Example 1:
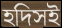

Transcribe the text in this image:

হদিসই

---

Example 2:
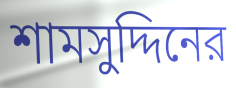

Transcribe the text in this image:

শামসুদ্দিনের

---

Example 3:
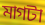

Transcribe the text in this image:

মাগটা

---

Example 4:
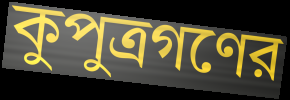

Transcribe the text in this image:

কুপুত্রগণের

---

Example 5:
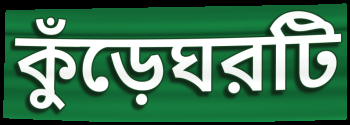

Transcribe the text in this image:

কুঁড়েঘরটি